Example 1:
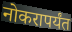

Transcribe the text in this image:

नोकरापर्यंत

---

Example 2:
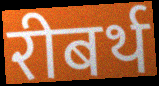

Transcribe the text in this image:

रीबर्थ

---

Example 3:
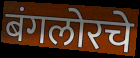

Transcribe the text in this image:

बंगलोरचे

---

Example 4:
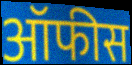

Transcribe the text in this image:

ऑफीस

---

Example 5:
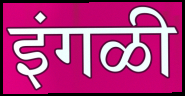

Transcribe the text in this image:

इंगळी